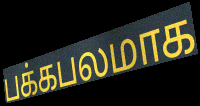
பக்கபலமாக